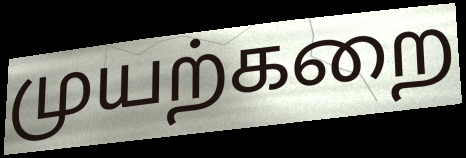
முயற்கறை